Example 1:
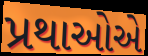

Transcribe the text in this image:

પ્રથાઓએ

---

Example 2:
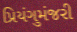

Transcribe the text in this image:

પ્રિયંગુમંજરી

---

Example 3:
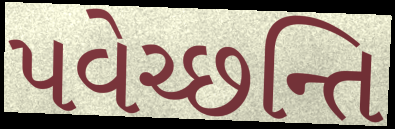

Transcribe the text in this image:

પવેચ્છન્તિ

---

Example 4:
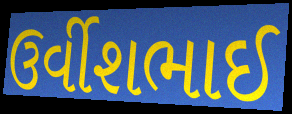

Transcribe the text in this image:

ઉર્વીશભાઈ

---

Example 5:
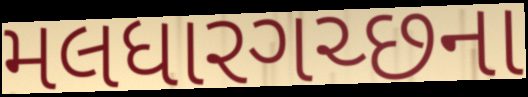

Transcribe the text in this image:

મલધારગચ્છના